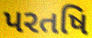
પરતષિ